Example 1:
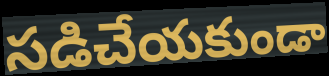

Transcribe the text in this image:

సడిచేయకుండా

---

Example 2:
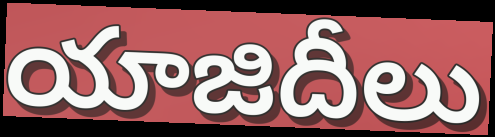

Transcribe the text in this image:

యాజిదీలు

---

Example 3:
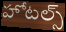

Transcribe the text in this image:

హోటల్స్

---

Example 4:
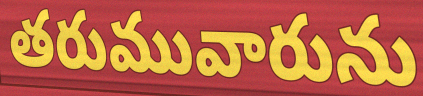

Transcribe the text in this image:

తరుమువారును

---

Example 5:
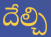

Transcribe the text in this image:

దేల్చి